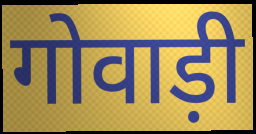
गोवाड़ी